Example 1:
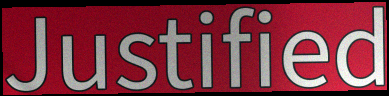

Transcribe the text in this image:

Justified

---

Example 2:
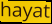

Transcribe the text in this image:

hayat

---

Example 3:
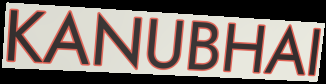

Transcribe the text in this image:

KANUBHAI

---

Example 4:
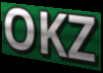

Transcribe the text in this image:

OKZ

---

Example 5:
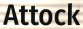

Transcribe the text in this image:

Attock